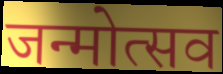
जन्मोत्सव